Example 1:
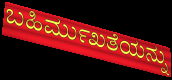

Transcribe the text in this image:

ಬಹಿರ್ಮುಖತೆಯನ್ನು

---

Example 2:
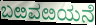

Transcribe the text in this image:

ಬೞವೞಯನೆ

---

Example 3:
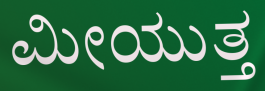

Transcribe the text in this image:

ಮೀಯುತ್ತ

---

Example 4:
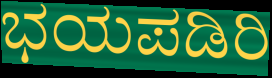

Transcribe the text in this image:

ಭಯಪಡಿರಿ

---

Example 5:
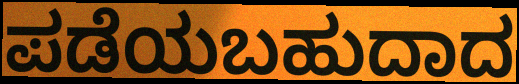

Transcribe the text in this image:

ಪಡೆಯಬಹುದಾದ